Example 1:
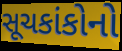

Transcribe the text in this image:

સૂચકાંકોનો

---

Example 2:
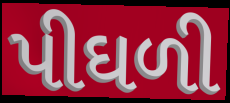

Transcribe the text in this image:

પીઘળી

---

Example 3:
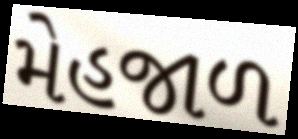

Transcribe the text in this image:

મેહજાળ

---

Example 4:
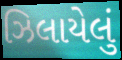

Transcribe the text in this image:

ઝિલાયેલું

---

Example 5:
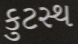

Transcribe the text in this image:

કુટસ્થ